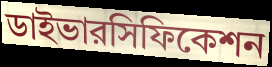
ডাইভারসিফিকেশন